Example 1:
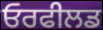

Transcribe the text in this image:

ਓਰਫੀਲਡ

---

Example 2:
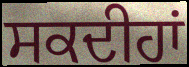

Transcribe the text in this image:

ਸਕਦੀਹਾਂ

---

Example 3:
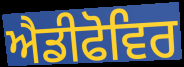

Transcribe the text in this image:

ਐਡੀਫੋਵਿਰ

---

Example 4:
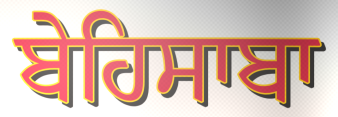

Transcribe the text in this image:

ਬੇਹਿਸਾਬਾ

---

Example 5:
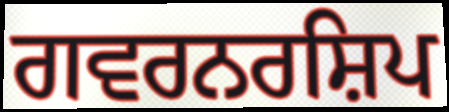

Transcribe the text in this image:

ਗਵਰਨਰਸ਼ਿਪ